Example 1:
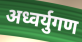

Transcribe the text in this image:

अध्वर्युगण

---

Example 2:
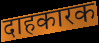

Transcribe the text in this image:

दाहकारक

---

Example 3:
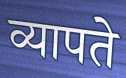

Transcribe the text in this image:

व्यापते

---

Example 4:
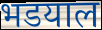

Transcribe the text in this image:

भडयाल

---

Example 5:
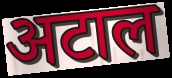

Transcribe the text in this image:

अटाल